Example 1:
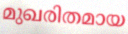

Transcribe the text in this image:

മുഖരിതമായ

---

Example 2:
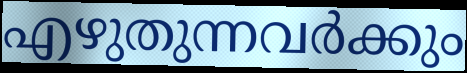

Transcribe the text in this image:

എഴുതുന്നവർക്കും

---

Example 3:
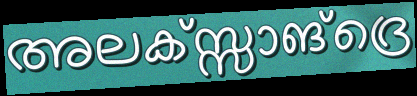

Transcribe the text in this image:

അലക്സ്സാങ്ദ്രെ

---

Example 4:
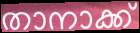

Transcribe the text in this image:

താനാക്ക്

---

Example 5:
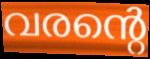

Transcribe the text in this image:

വരന്റെ